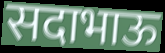
सदाभाऊ